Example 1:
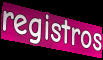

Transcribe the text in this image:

registros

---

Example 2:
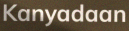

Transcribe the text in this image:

Kanyadaan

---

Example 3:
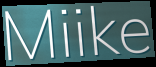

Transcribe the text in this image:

Miike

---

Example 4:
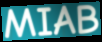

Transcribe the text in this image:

MIAB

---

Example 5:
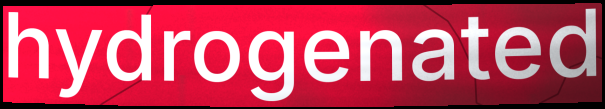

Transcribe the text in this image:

hydrogenated